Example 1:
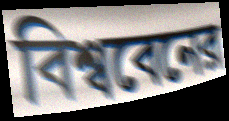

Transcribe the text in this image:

বিশ্ববেনের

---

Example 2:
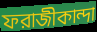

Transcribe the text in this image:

ফরাজীকান্দা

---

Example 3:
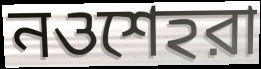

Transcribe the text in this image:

নওশেহরা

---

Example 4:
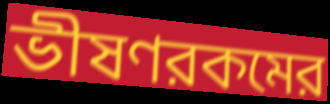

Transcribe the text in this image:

ভীষণরকমের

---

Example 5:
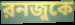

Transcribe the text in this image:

রনজুকে